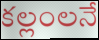
కల్లంలనే